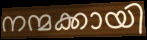
നന്മക്കായി